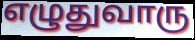
எழுதுவாரு